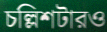
চল্লিশটারও